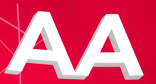
AA